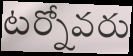
టర్నోవరు